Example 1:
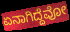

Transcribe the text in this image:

ಏನಾಗಿದ್ದೆವೋ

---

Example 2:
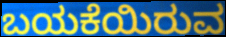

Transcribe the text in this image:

ಬಯಕೆಯಿರುವ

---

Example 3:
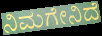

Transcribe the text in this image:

ನಿಮಗೇನಿದೆ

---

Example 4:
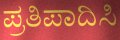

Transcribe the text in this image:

ಪ್ರತಿಪಾದಿಸಿ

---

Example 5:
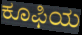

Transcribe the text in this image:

ಕೂಫಿಯ